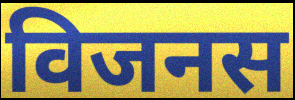
विजनस